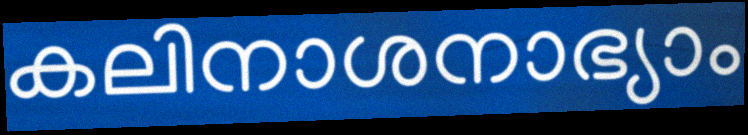
കലിനാശനാഭ്യാം